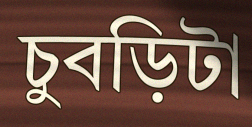
চুবড়িটা